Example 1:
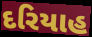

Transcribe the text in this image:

દરિયાહ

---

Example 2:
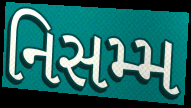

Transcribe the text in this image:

નિસમ્મ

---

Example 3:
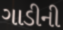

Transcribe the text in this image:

ગાડીની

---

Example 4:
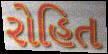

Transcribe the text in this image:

રોહિત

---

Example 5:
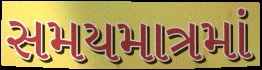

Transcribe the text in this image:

સમયમાત્રમાં